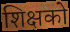
शिक्षको